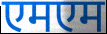
एमएम